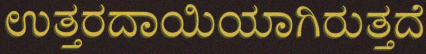
ಉತ್ತರದಾಯಿಯಾಗಿರುತ್ತದೆ